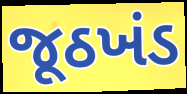
જૂઠખંડ